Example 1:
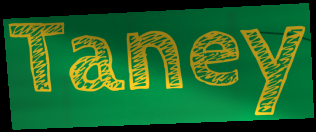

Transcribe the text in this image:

Taney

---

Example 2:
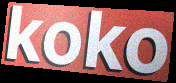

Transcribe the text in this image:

koko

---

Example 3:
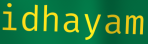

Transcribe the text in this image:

idhayam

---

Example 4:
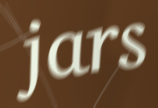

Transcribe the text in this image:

jars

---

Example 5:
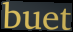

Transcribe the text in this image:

buet